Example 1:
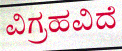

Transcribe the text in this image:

ವಿಗ್ರಹವಿದೆ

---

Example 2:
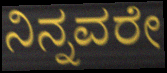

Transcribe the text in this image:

ನಿನ್ನವರೇ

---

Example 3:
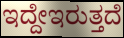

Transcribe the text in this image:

ಇದ್ದೇಇರುತ್ತದೆ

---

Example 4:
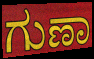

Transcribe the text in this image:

ಗುಣಾ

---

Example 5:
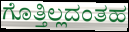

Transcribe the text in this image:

ಗೊತ್ತಿಲ್ಲದಂತಹ